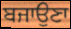
ਬਜਾਉਣਾ